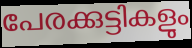
പേരക്കുട്ടികളും